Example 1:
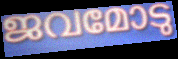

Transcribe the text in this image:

ജവമോടു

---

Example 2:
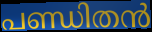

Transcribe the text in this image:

പണ്ഡിതൻ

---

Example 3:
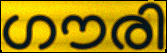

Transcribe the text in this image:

ഗൗരി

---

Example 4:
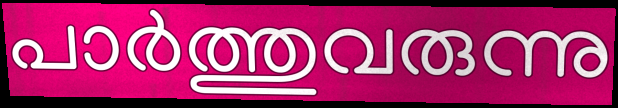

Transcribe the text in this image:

പാർത്തുവരുന്നു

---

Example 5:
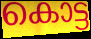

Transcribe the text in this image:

കൊട്ട